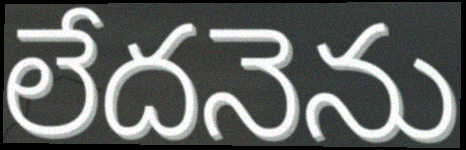
లేదనెను